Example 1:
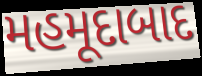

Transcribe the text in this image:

મહમૂદાબાદ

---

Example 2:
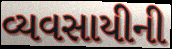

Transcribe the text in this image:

વ્યવસાયીની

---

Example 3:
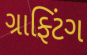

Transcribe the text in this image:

ગ્રાફ્ટિંગ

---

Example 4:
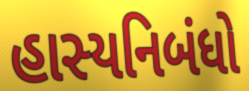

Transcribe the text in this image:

હાસ્યનિબંધો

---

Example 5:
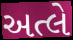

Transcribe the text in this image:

અત્લે